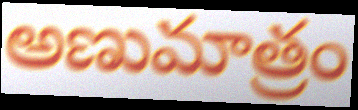
అణుమాత్రం